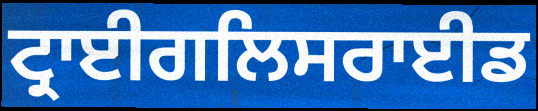
ਟ੍ਰਾਈਗਲਿਸਰਾਈਡ